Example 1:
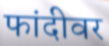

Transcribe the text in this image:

फांदीवर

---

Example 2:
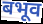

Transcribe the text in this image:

बभूव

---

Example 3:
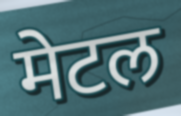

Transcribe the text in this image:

मेटल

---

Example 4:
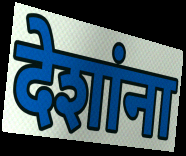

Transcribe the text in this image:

देशांना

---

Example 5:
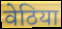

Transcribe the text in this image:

वेठिया